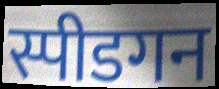
स्पीडगन